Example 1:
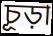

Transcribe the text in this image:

চূড়া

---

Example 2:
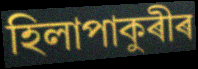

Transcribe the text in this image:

হিলাপাকুৰীৰ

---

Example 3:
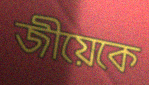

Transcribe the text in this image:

জীয়েকে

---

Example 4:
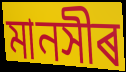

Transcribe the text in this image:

মানসীৰ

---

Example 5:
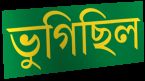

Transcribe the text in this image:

ভুগিছিল